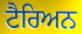
ਟੈਰਿਅਨ